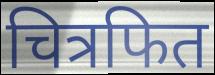
चित्रफित